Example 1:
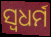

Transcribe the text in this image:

ସ୍ଵଧର୍ମ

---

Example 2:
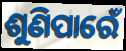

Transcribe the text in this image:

ଶୁଣିପାରେଁ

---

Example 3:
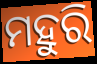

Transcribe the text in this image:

ମହୁରି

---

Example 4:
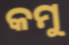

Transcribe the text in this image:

କମୁ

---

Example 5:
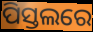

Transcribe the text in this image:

ପିସ୍ତଲରେ